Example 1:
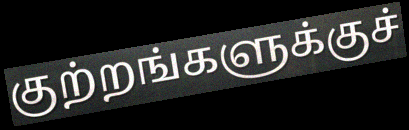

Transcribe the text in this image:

குற்றங்களுக்குச்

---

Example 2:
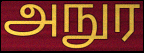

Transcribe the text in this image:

அநுர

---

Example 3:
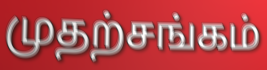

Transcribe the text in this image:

முதற்சங்கம்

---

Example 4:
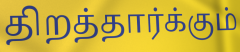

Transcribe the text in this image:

திறத்தார்க்கும்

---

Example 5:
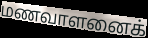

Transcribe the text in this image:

மணவாளனைக்